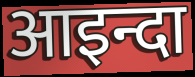
आइन्दा